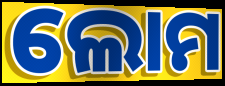
ଲୋମ